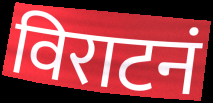
विराटनं